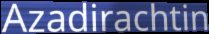
Azadirachtin